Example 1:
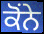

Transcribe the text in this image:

ਕੋਂਨੇ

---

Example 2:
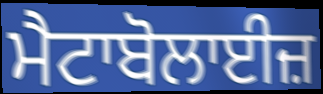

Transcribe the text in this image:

ਮੈਟਾਬੋਲਾਈਜ਼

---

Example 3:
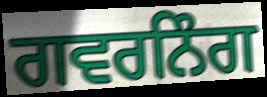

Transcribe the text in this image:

ਗਵਰਨਿੰਗ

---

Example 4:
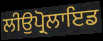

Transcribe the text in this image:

ਲੀਉਪ੍ਰੋਲਾਇਡ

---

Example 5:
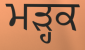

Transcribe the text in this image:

ਮੜ੍ਹਕ